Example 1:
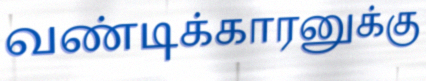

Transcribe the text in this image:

வண்டிக்காரனுக்கு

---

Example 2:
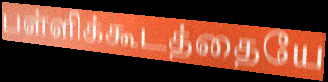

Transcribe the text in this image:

பள்ளிக்கூடத்தையே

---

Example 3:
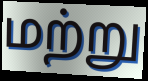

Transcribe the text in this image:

மற்று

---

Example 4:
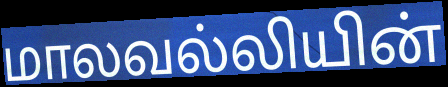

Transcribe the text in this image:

மாலவல்லியின்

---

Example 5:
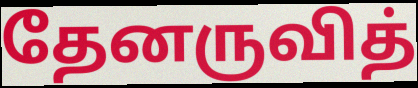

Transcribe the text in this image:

தேனருவித்